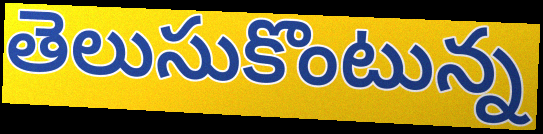
తెలుసుకొంటున్న